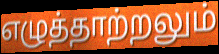
எழுத்தாற்றலும்